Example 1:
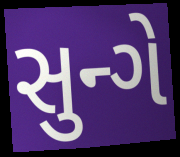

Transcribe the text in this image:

સુન્ગે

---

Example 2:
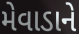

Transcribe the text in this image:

મેવાડાને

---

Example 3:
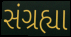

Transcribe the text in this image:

સંગ્રહ્યા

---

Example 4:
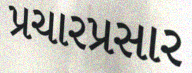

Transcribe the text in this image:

પ્રચારપ્રસાર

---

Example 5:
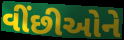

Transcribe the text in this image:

વીંછીઓને